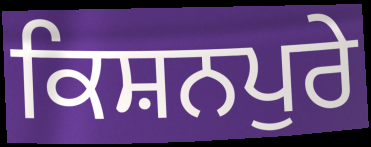
ਕਿਸ਼ਨਪੁਰੇ